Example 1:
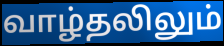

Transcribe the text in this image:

வாழ்தலிலும்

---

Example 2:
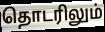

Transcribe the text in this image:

தொடரிலும்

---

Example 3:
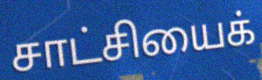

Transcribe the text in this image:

சாட்சியைக்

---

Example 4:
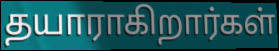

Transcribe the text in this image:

தயாராகிறார்கள்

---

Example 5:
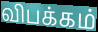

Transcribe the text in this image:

விபக்கம்